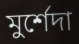
মুর্শেদা